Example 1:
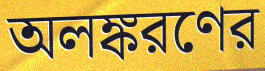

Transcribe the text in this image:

অলঙ্করণের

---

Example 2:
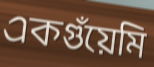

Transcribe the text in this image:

একগুঁয়েমি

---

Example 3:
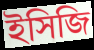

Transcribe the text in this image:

ইসিজি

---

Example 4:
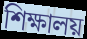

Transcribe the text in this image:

শিক্ষালয়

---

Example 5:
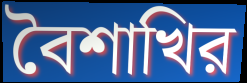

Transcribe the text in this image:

বৈশাখির